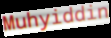
Muhyiddin